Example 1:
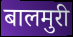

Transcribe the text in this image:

बालमुरी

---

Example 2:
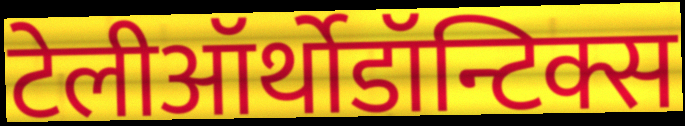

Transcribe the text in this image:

टेलीऑर्थोडॉन्टिक्स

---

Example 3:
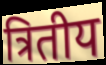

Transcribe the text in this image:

त्रितीय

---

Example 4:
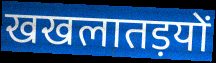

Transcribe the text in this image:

खखलातड़यों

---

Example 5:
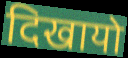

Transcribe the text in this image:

दिखायो